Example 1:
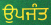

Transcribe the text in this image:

ਉਪਜੰਤ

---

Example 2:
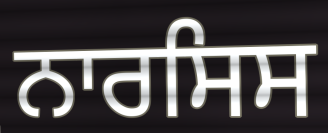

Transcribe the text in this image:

ਨਾਰਸਿਸ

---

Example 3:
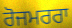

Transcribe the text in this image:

ਰੋਜਮਰਰਾ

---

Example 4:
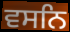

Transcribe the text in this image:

ਵਸਨਿ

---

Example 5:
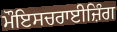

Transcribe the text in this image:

ਮੌਇਸਚਰਾਈਜ਼ਿੰਗ